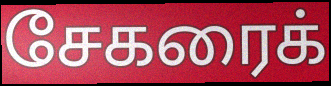
சேகரைக்